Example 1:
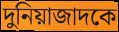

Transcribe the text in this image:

দুনিয়াজাদকে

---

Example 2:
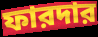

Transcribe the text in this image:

ফারদার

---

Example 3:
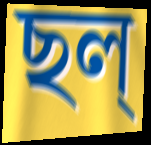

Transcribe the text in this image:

ছল্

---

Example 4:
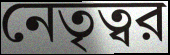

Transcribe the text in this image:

নেতৃত্বর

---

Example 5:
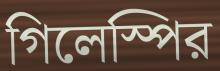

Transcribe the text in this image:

গিলেস্পির